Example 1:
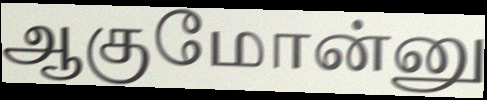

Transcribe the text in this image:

ஆகுமோன்னு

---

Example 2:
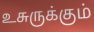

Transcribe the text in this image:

உசுருக்கும்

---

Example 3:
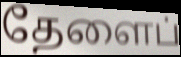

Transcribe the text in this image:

தேளைப்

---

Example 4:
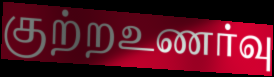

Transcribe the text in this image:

குற்றஉணர்வு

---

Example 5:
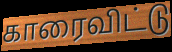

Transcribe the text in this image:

காரைவிட்டு